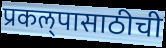
प्रकल्पासाठीची